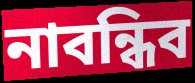
নাবন্ধিব